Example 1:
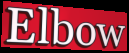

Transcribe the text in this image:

Elbow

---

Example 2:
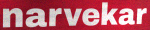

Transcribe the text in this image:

narvekar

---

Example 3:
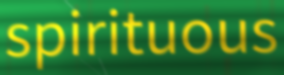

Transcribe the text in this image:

spirituous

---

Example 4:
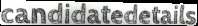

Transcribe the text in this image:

candidatedetails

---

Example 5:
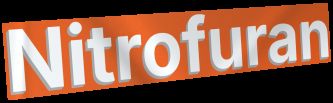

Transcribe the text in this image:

Nitrofuran